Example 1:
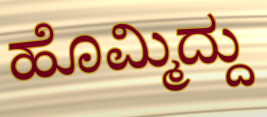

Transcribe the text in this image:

ಹೊಮ್ಮಿದ್ದು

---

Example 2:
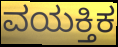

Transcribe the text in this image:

ವಯಕ್ತಿಕ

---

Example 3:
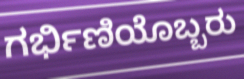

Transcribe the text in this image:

ಗರ್ಭಿಣಿಯೊಬ್ಬರು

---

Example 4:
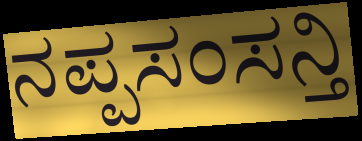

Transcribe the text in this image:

ನಪ್ಪಸಂಸನ್ತಿ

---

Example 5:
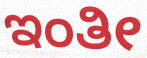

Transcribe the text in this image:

ಇಂತೀ